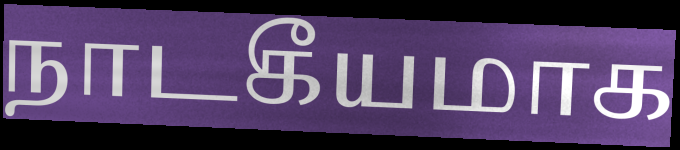
நாடகீயமாக